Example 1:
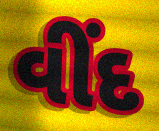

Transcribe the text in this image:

વીંદ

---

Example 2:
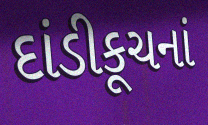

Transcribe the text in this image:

દાંડીકૂચનાં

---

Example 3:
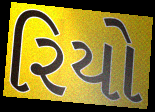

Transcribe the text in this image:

રિયો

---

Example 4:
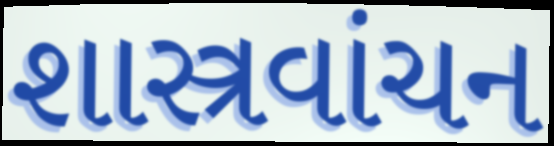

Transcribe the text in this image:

શાસ્ત્રવાંચન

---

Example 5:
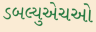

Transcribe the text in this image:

ડબલ્યુએચઓ